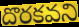
దొరకవని